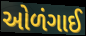
ઓળંગાઈ